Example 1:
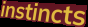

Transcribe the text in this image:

instincts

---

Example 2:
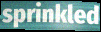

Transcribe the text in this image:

sprinkled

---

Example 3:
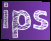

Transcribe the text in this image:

ips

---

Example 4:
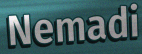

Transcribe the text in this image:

Nemadi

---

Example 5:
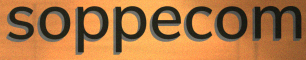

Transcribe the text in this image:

soppecom